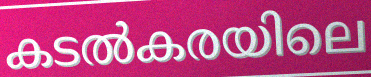
കടൽകരയിലെ